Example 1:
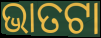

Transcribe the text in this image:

ଭାତଟା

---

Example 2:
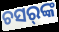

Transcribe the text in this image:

ଚସର୍‌ଙ୍କ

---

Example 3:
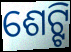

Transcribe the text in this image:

ଶେଟ୍ଟି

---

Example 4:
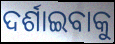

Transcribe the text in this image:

ଦର୍ଶାଇବାକୁ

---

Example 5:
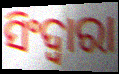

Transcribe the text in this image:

ସିଂଦ୍ୱାରା